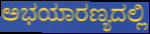
ಅಭಯಾರಣ್ಯದಲ್ಲಿ